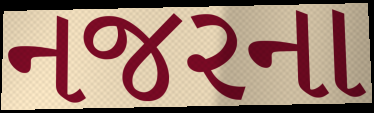
નજરના